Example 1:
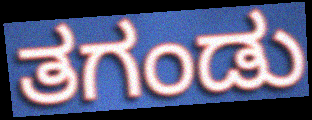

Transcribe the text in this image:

ತಗಂಡು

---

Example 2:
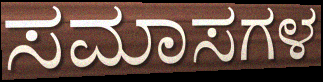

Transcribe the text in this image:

ಸಮಾಸಗಳ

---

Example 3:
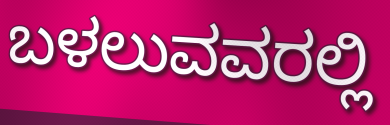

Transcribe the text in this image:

ಬಳಲುವವರಲ್ಲಿ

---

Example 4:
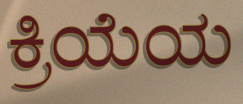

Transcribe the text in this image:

ಕ್ರಿಯೆಯ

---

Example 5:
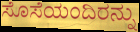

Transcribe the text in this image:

ಸೊಸೆಯಂದಿರನ್ನು